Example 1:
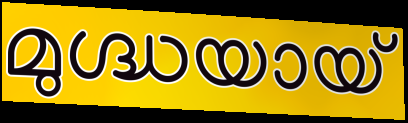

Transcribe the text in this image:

മുഗ്ദ്ധയായ്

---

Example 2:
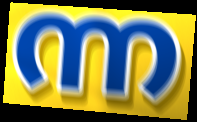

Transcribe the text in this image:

ന്ന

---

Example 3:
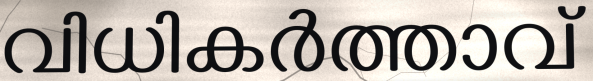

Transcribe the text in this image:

വിധികർത്താവ്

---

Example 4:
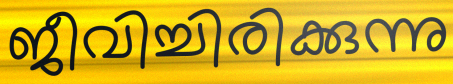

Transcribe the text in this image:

ജീവിച്ചിരിക്കുന്നു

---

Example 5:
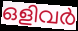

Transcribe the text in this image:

ഒളിവർ